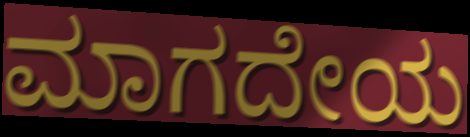
ಮಾಗದೇಯ